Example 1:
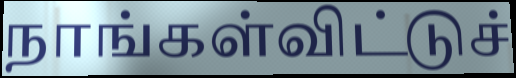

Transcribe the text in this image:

நாங்கள்விட்டுச்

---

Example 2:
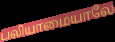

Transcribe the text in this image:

பலியாமையாலே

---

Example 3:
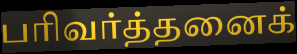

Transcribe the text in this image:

பரிவர்த்தனைக்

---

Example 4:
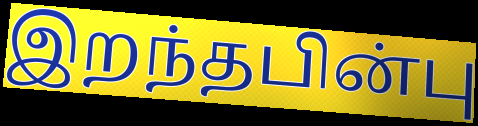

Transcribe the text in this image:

இறந்தபின்பு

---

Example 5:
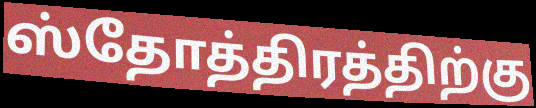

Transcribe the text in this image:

ஸ்தோத்திரத்திற்கு